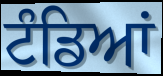
ਟੰਡਿਆਂ